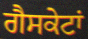
ਗੈਸਕੇਟਾਂ